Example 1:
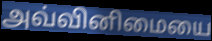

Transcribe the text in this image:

அவ்வினிமையை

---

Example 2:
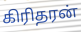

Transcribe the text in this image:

கிரிதரன்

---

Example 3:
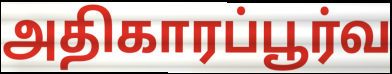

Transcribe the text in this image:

அதிகாரப்பூர்வ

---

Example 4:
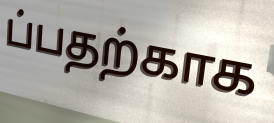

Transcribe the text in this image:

ப்பதற்காக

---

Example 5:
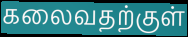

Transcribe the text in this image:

கலைவதற்குள்